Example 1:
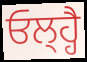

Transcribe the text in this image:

ਓਲ੍ਹ੍ਹੈ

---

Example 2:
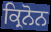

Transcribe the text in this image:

ਕ੍ਰਿਨੋਨ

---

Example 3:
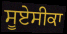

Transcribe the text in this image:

ਸੂਏਸੀਕਾ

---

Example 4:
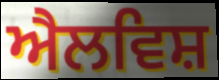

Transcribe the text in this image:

ਐਲਵਿਸ਼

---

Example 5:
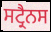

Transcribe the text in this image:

ਸਟ੍ਰੈਨਸ